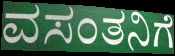
ವಸಂತನಿಗೆ